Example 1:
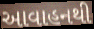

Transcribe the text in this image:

આવાહનથી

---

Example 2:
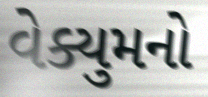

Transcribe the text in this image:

વેક્યુમનો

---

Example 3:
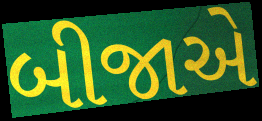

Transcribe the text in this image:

બીજાએ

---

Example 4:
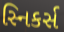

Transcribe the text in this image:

સ્નિકર્સ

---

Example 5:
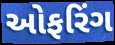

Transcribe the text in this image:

ઓફરિંગ